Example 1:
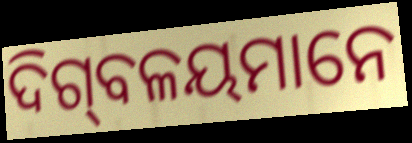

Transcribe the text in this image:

ଦିଗ୍‌ବଳୟମାନେ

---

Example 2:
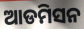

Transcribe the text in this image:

ଆଡମିସନ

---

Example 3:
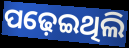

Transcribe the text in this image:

ପଢ଼େଇଥିଲି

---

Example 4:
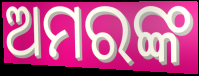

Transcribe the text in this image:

ଅମରଙ୍କ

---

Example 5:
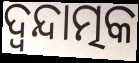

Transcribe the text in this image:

ଦ୍ୱନ୍ଦାତ୍ମକ